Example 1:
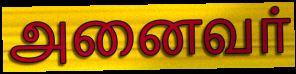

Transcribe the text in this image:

அனைவர்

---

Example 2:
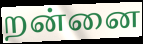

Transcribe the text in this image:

றன்னை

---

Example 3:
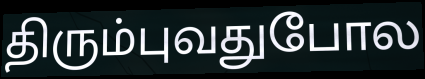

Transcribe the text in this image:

திரும்புவதுபோல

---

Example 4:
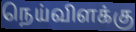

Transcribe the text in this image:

நெய்விளக்கு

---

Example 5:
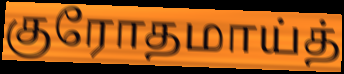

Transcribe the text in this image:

குரோதமாய்த்